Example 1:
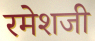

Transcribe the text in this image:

रमेशजी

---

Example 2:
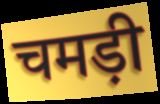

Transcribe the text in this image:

चमड़ी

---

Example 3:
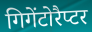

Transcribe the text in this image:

गिगेंटोरैप्टर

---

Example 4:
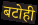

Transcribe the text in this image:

बटोही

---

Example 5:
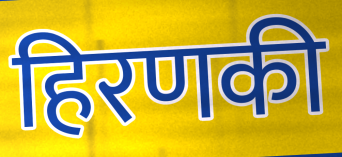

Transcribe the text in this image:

हिरणकी